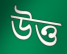
উত্ত